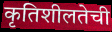
कृतिशीलतेची